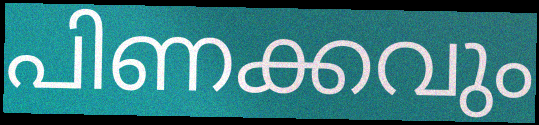
പിണക്കവും